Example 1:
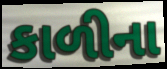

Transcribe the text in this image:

કાળીના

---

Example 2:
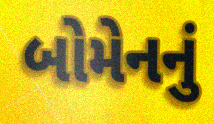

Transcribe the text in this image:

બોમેનનું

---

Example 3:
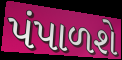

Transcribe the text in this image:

પંપાળશે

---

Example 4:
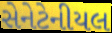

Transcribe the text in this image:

સેનેટેનીયલ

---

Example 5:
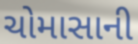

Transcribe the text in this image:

ચોમાસાની